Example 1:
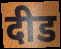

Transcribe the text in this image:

दीड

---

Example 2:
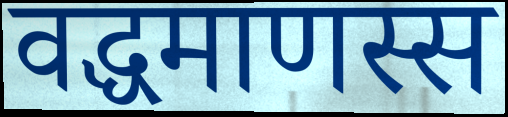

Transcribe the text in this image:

वद्धमाणस्स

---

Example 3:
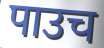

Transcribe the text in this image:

पाउच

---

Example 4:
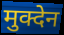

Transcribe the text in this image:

मुक्देन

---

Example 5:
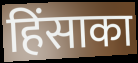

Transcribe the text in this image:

हिंसाका